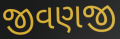
જીવણજી